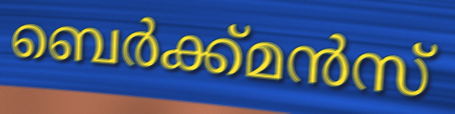
ബെർക്ക്മൻസ്